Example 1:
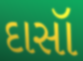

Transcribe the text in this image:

દાસૉ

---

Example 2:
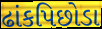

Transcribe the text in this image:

ઢાંકપિછોડા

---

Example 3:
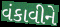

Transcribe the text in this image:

વંકાવીને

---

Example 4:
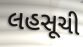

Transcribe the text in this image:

લહસૂચી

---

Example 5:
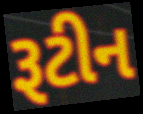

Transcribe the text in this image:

રૂટીન